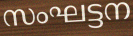
സംഘട്ടന